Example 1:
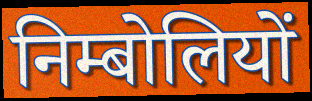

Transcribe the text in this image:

निम्बोलियों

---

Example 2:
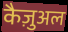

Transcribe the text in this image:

कैज़ुअल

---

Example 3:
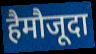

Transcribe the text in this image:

हैमौजूदा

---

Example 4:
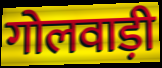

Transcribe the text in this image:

गोलवाड़ी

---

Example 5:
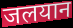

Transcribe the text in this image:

जलयान